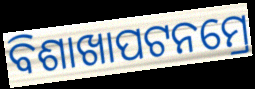
ବିଶାଖାପଟନମ୍ରେ